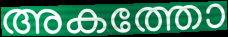
അകത്തോ